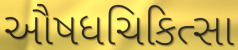
ઔષધચિકિત્સા